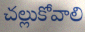
చల్లుకోవాలి